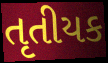
તૃતીયક